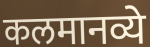
कलमानव्ये